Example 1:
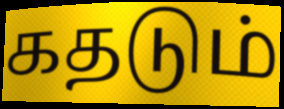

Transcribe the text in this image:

கதடும்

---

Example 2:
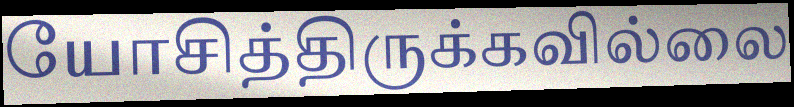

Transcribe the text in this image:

யோசித்திருக்கவில்லை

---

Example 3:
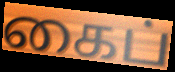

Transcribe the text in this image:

கைப்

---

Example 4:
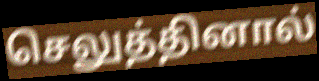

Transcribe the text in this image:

செலுத்தினால்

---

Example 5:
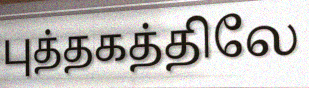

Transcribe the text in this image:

புத்தகத்திலே